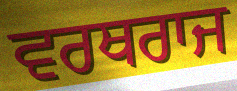
ਵਰਥਰਾਜ